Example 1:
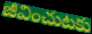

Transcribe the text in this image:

జీవించుటకు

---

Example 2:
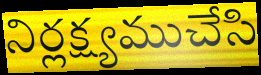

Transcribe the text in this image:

నిర్లక్ష్యముచేసి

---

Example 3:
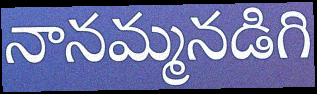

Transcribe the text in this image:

నానమ్మనడిగి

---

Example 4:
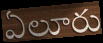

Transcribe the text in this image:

ఏలూరు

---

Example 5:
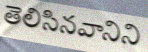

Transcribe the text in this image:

తెలిసినవానిని